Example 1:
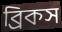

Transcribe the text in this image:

ব্রিকস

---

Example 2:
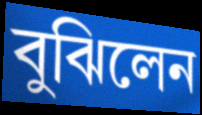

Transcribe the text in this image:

বুঝিলেন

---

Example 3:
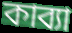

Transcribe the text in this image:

কাব্যা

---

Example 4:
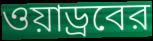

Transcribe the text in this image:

ওয়াড্রবের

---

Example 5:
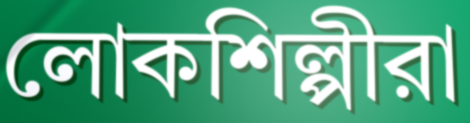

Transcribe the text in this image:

লোকশিল্পীরা